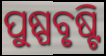
ପୁଷ୍ପବୃଷ୍ଟି